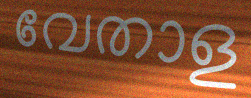
വേതാള